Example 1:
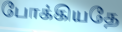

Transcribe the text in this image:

போக்கியதே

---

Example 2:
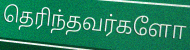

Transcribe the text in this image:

தெரிந்தவர்களோ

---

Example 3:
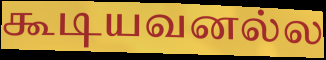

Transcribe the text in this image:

கூடியவனல்ல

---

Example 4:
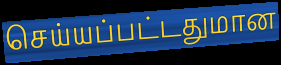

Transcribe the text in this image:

செய்யப்பட்டதுமான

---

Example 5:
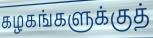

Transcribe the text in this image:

கழகங்களுக்குத்